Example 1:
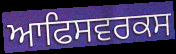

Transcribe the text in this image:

ਆਫਿਸਵਰਕਸ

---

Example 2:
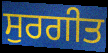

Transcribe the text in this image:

ਸੁਰਗੀਤ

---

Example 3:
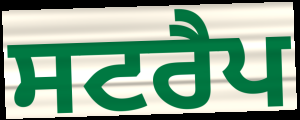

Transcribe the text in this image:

ਸਟਰੈਪ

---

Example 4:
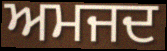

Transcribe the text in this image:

ਅਮਜਦ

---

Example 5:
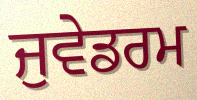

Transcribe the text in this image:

ਜੁਵੇਡਰਮ